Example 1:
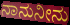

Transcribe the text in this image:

ನಾನುನೀನು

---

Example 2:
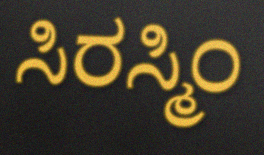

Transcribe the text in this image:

ಸಿರಸ್ಮಿಂ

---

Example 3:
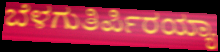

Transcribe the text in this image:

ಬೆಳಗುತಿರ್ಪಿರಯ್ಯಾ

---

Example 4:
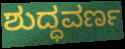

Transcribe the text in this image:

ಶುದ್ಧವರ್ಣ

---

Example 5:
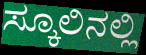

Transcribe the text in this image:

ಸ್ಕೂಲಿನಲ್ಲಿ